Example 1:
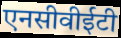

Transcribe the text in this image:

एनसीवीईटी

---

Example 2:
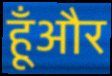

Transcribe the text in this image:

हूँऔर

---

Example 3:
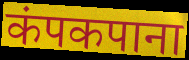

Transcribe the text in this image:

कंपकपाना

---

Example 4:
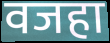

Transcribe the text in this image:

वजहा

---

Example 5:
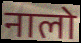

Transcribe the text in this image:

नालो